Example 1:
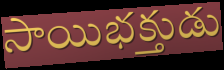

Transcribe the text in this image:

సాయిభక్తుడు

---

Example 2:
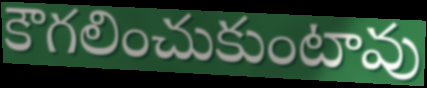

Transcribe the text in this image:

కౌగలించుకుంటావు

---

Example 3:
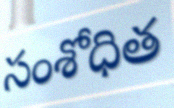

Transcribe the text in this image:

సంశోధిత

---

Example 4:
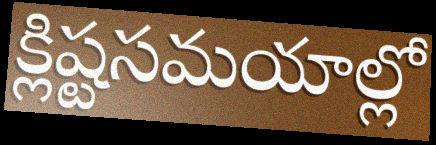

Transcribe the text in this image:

క్లిష్టసమయాల్లో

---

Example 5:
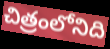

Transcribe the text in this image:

చిత్రంలోనిది